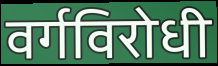
वर्गविरोधी